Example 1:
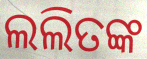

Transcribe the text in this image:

ଲଲିତଙ୍କ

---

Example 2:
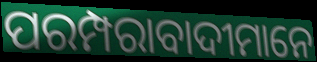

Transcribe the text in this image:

ପରମ୍ପରାବାଦୀମାନେ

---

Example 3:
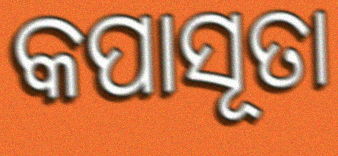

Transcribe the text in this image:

କପାସୂତା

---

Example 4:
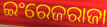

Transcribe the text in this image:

ଇଂରେଜରାଜା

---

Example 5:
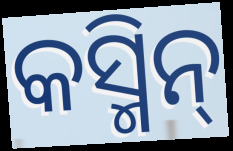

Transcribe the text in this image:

କସ୍ମିନ୍